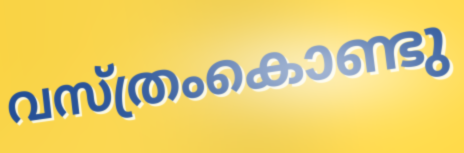
വസ്ത്രംകൊണ്ടു